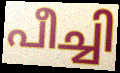
പീച്ചി